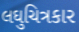
લઘુચિત્રકાર